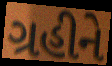
ગ્રહીને